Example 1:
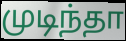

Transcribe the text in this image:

முடிந்தா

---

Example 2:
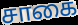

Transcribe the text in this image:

சாகை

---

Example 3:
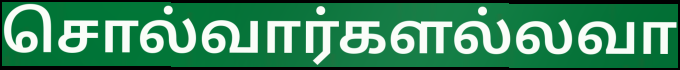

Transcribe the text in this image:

சொல்வார்களல்லவா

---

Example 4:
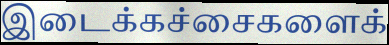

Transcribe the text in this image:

இடைக்கச்சைகளைக்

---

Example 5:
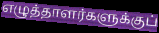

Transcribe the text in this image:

எழுத்தாளர்களுக்குப்